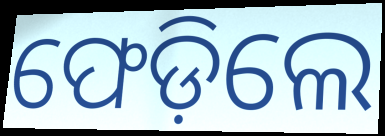
ଫେଡ଼ିଲେ